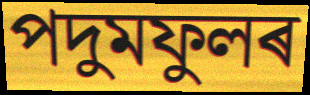
পদুমফুলৰ